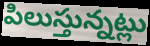
పిలుస్తున్నట్లు